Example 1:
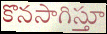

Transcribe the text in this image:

కొనసాగిస్తూ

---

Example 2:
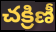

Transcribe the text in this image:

చక్రిణీ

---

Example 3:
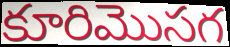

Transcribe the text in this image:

కూరిమొసగ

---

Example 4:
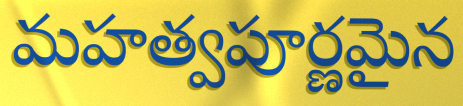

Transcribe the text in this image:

మహత్వపూర్ణమైన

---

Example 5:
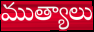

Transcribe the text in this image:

ముత్యాలు